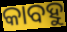
କାବହୁ